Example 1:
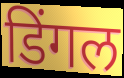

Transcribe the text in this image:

डिंगल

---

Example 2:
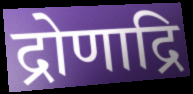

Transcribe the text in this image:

द्रोणाद्रि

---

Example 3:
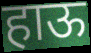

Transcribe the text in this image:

हाऊ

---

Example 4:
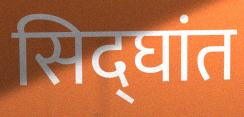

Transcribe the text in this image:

सिद्घांत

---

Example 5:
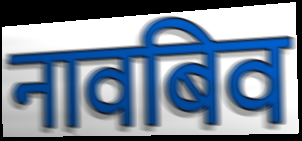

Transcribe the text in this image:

नावबिव